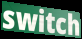
switch